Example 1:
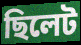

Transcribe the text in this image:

ছিলেট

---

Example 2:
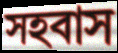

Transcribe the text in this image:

সহবাস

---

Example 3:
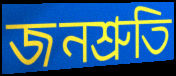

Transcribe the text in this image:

জনশ্ৰুতি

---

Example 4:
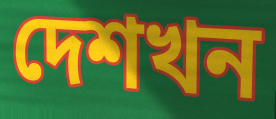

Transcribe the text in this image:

দেশখন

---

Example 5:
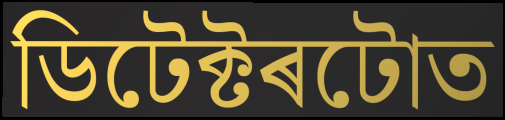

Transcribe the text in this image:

ডিটেক্টৰটোত